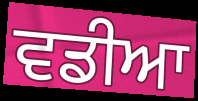
ਵਡੀਆ